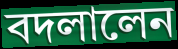
বদলালেন